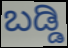
ಬಡ್ಡಿ